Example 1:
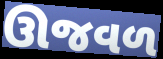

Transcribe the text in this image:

ઊજવળ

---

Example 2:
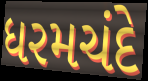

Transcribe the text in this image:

ધરમચંદે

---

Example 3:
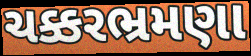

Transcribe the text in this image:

ચક્કરભ્રમણા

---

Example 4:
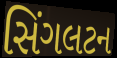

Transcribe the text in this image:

સિંગલટન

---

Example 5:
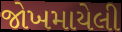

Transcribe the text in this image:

જોખમાયેલી